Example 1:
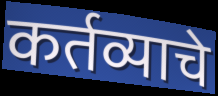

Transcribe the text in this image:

कर्तव्याचे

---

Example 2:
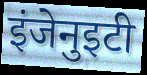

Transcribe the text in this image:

इंजेनुइटी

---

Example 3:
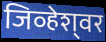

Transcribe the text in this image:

जिव्हेश्वर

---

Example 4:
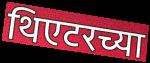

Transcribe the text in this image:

थिएटरच्या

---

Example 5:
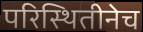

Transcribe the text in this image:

परिस्थितीनेच